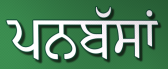
ਪਨਬੱਸਾਂ